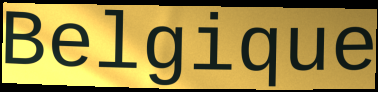
Belgique